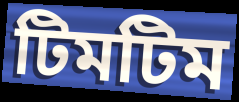
টিমটিম